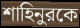
শাহিনুরকে